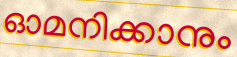
ഓമനിക്കാനും